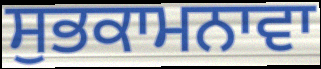
ਸੁਭਕਾਮਨਾਵਾ